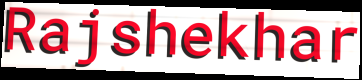
Rajshekhar